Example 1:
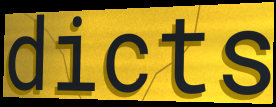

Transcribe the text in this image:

dicts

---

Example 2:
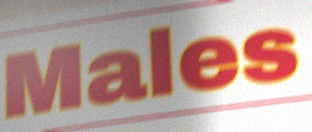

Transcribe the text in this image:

Males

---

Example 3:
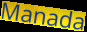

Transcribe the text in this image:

Manada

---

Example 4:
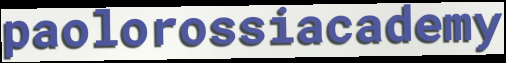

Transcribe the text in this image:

paolorossiacademy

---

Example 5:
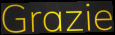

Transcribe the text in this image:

Grazie